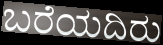
ಬರೆಯದಿರು